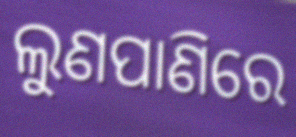
ଲୁଣପାଣିରେ